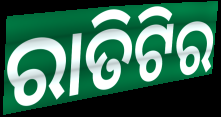
ରାତିଟିର